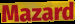
Mazard